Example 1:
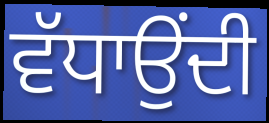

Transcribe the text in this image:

ਵੱਧਾਉਂਦੀ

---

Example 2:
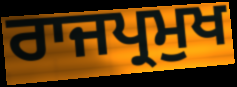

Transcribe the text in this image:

ਰਾਜਪ੍ਰਮੁਖ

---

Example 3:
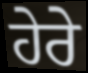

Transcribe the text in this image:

ਹੇਰੇ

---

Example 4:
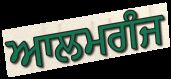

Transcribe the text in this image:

ਆਲਮਗੰਜ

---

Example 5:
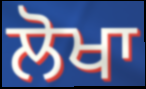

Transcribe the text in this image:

ਲੋਖਾ